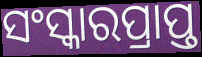
ସଂସ୍କାରପ୍ରାପ୍ତ